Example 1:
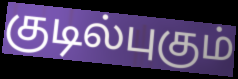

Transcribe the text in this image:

குடில்புகும்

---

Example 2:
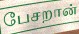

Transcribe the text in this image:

பேசறான்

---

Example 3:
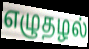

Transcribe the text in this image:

எழுதழல்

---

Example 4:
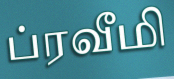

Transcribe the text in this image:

ப்ரவீமி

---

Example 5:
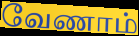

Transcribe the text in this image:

வேணாம்